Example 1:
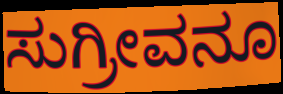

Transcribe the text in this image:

ಸುಗ್ರೀವನೂ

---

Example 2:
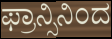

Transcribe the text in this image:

ಫ್ರಾನ್ಸಿನಿಂದ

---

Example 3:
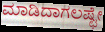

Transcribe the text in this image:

ಮಾಡಿದಾಗಲಷ್ಟೇ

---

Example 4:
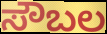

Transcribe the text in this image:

ಸೌಬಲ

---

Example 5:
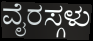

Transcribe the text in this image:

ವೈರಸ್ಗಳು